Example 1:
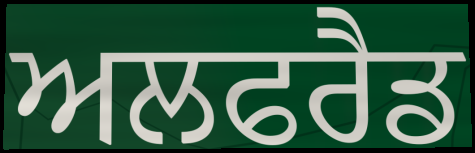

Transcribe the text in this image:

ਅਲਫਰੈਡ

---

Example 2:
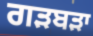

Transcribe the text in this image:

ਗੜਬੜਾ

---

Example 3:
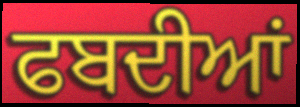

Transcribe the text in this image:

ਫਬਦੀਆਂ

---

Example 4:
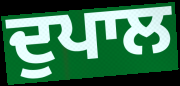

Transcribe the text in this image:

ਦੁਪਾਲ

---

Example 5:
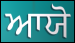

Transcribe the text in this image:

ਆਯੋ